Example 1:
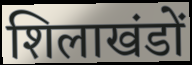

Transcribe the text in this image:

शिलाखंडों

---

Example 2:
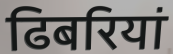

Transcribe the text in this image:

ढिबरियां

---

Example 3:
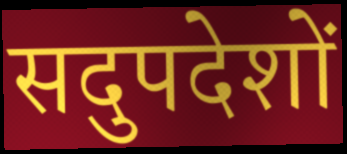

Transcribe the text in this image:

सदुपदेशों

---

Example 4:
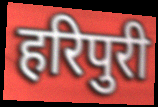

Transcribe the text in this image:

हरिपुरी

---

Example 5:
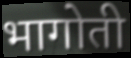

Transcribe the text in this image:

भागोती